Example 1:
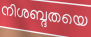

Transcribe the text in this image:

നിശബ്ദതയെ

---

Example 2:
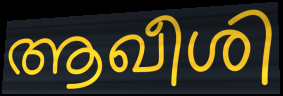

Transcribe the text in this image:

ആഖീശി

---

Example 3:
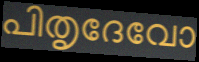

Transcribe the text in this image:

പിതൃദേവോ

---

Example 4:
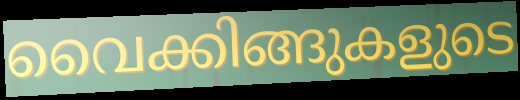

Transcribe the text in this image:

വൈക്കിങ്ങുകളുടെ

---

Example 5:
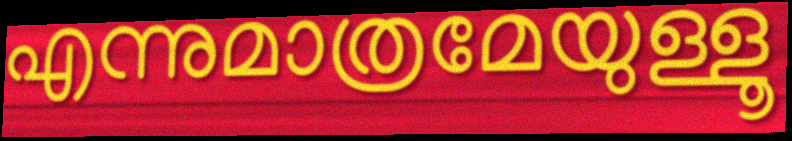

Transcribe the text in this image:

എന്നുമാത്രമേയുള്ളൂ